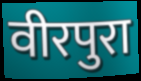
वीरपुरा